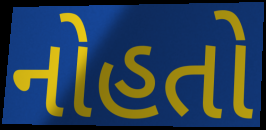
નોહતો